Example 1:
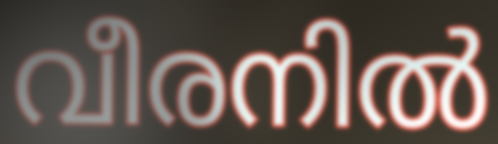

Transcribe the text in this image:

വീരനിൽ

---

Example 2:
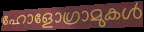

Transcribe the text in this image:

ഹോളോഗ്രാമുകൾ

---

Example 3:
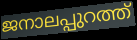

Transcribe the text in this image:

ജനാലപ്പുറത്ത്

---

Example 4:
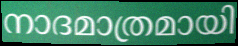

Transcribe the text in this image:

നാദമാത്രമായി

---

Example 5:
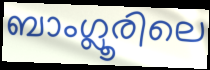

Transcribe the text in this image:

ബാംഗ്ലൂരിലെ